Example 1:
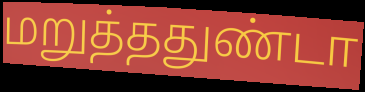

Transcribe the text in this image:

மறுத்ததுண்டா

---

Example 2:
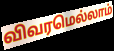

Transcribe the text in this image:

விவரமெல்லாம்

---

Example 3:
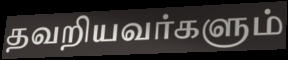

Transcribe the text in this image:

தவறியவர்களும்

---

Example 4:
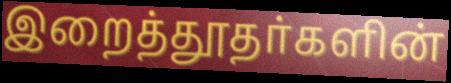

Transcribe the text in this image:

இறைத்தூதர்களின்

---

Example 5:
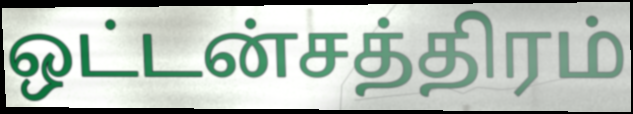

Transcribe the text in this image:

ஒட்டன்சத்திரம்